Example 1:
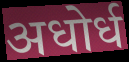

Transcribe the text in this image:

अधोर्ध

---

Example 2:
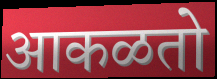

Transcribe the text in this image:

आकळतो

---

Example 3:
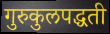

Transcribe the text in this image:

गुरुकुलपद्धती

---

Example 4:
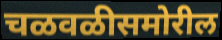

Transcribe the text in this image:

चळवळीसमोरील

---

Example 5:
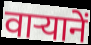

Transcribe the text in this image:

वार्‍यानें